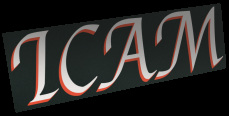
ICAM